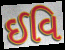
ઈવિ